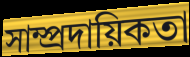
সাম্প্রদায়িকতা